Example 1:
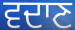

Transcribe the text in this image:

ਵਦਾਣ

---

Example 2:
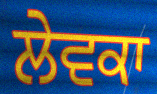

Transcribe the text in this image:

ਲੇਵਕਾ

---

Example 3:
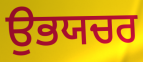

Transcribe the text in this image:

ਉਭਯਚਰ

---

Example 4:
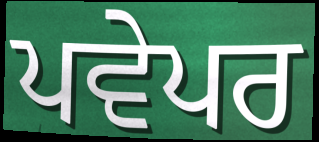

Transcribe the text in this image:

ਪਵੇਪਰ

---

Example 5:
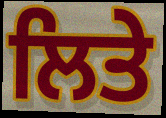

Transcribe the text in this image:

ਲਿਤੇ